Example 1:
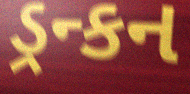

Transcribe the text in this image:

ડ્રન્કન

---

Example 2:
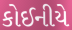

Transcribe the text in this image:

કોઈનીયે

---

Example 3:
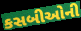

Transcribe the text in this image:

કસબીઓની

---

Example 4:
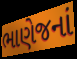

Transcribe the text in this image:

ભાણેજનાં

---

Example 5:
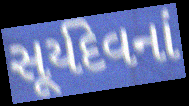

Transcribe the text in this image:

સૂર્યદેવનાં